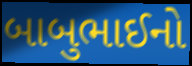
બાબુભાઈનો